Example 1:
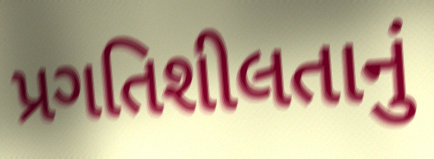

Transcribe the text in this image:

પ્રગતિશીલતાનું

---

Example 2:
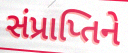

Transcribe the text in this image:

સંપ્રાપ્તિને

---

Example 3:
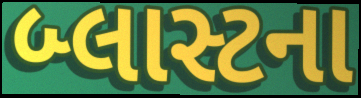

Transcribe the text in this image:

બ્લાસ્ટના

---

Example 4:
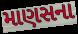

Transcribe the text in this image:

માણસના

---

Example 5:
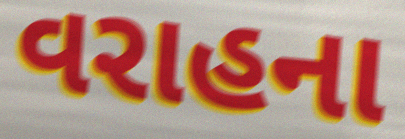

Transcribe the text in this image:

વરાહના